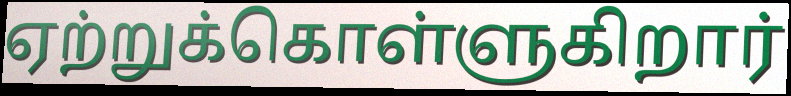
ஏற்றுக்கொள்ளுகிறார்